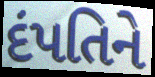
દંપતિને